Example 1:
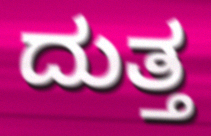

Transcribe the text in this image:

ದುತ್ತ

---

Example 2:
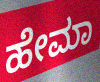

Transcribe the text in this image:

ಹೇಮಾ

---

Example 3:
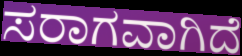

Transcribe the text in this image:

ಸರಾಗವಾಗಿದೆ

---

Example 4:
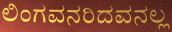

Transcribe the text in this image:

ಲಿಂಗವನರಿದವನಲ್ಲ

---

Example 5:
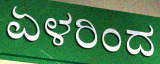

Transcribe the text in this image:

ಏಳರಿಂದ